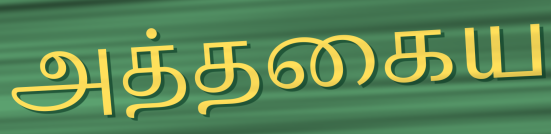
அத்தகைய